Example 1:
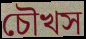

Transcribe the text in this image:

চৌখস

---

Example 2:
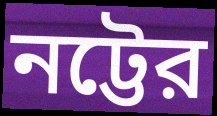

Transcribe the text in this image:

নট্টের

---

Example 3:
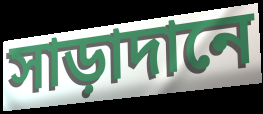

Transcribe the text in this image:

সাড়াদানে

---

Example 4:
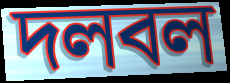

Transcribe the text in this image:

দলবল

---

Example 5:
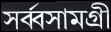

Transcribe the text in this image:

সর্ব্বসামগ্রী